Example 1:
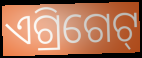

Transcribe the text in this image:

ଏଗ୍ରିଗେଟ୍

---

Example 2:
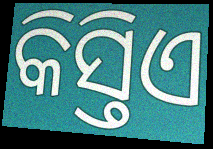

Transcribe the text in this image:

କିସ୍ତିଏ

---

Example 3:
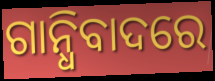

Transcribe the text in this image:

ଗାନ୍ଧିବାଦରେ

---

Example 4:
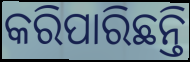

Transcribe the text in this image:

କରିପାରିଛନ୍ତି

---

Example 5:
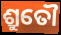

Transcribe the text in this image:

ଶ୍ରୁତୌ